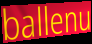
ballenu